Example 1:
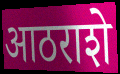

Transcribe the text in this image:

आठराशे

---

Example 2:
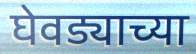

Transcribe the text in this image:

घेवड्याच्या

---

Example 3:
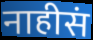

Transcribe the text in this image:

नाहीसं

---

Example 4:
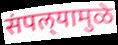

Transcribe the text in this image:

संपल्यामुळे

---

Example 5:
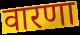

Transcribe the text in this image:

वारणा